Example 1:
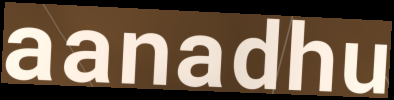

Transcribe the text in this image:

aanadhu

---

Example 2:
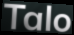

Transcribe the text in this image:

Talo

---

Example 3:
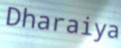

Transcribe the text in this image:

Dharaiya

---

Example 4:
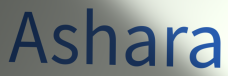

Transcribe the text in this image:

Ashara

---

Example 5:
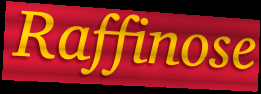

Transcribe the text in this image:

Raffinose